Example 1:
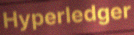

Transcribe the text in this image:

Hyperledger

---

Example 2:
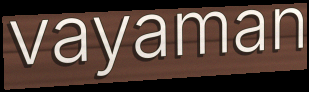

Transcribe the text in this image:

vayaman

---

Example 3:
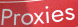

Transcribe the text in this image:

Proxies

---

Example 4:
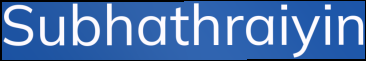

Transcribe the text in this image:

Subhathraiyin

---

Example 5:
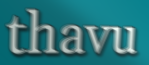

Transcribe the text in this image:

thavu